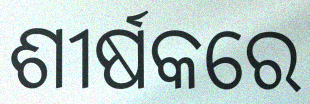
ଶୀର୍ଷକରେ